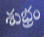
శుభ్రం